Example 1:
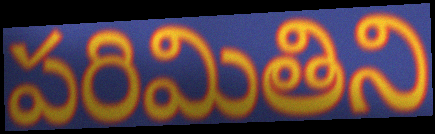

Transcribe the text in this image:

పరిమితిని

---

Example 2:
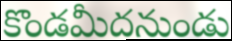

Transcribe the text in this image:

కొండమీదనుండు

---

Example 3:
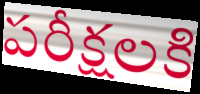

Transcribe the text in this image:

పరీక్షలకి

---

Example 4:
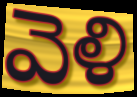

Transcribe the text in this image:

వెళి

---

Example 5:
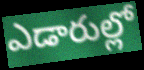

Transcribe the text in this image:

ఎడారుల్లో